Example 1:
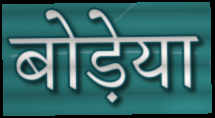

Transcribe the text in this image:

बोड़ेया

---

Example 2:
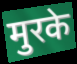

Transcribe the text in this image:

मुरके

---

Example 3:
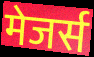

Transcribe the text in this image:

मेजर्स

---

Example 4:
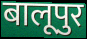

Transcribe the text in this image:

बालूपुर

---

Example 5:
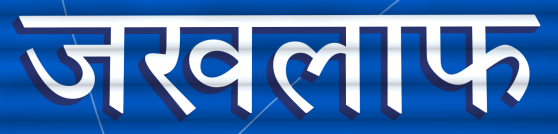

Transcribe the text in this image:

जखलाफ